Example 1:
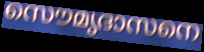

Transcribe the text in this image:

സൌമ്യദാസനെ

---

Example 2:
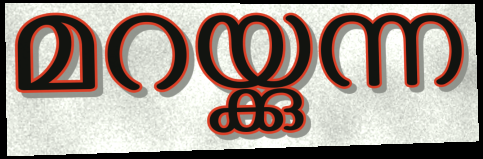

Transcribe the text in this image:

മറയ്ക്കുന്ന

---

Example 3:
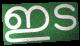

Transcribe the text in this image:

ഇട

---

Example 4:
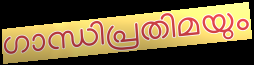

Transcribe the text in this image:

ഗാന്ധിപ്രതിമയും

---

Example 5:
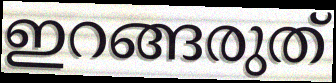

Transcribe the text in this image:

ഇറങ്ങരുത്